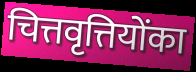
चित्तवृत्तियोंका